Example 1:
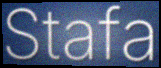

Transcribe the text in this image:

Stafa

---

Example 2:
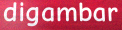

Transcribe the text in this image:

digambar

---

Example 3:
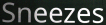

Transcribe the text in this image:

Sneezes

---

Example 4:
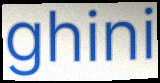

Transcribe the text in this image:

ghini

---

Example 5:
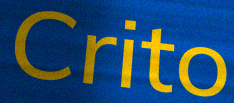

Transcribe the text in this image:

Crito